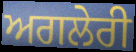
ਅਗਲੇਰੀ